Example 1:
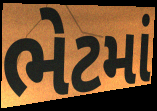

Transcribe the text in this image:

ભેટમાં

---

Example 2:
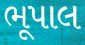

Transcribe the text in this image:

ભૂપાલ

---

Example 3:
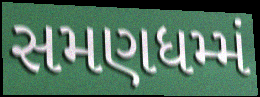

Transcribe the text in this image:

સમણધમ્મં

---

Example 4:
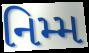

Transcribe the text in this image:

નિમ્મ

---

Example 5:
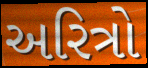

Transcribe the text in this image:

અરિત્રો